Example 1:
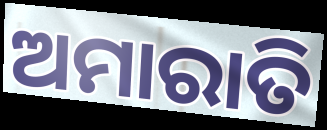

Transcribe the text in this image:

ଅମାରାତି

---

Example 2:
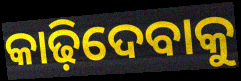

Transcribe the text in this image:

କାଢ଼ିଦେବାକୁ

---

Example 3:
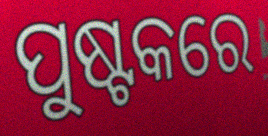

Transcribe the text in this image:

ପୁଷ୍ଟକରେ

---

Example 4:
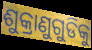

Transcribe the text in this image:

ଶୁକ୍ରାଣୁଗୁଡିକୁ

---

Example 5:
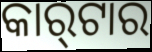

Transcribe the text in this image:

କାର୍‍ଟାର